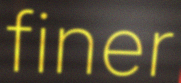
finer